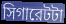
সিগারেটটা